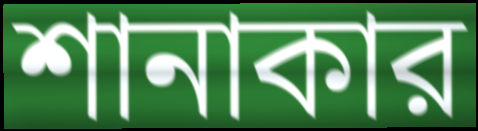
শানাকার